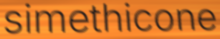
simethicone